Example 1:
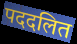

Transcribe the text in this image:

पददलित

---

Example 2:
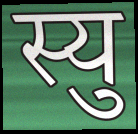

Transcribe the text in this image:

स्यु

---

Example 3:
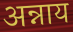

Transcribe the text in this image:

अन्नाय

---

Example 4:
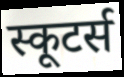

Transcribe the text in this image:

स्कूटर्स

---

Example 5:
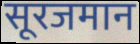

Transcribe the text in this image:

सूरजमान